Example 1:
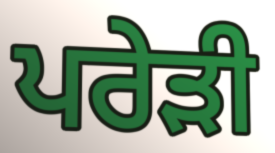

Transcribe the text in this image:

ਪਰੇੜੀ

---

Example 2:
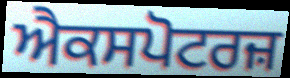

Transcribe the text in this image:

ਐਕਸਪੋਟਰਜ਼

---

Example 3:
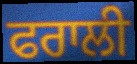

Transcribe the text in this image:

ਫਰਾਲੀ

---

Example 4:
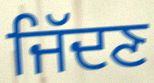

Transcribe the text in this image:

ਜਿੱਦਣ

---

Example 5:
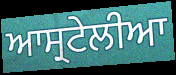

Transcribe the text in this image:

ਆਸ੍ਰਟੇਲੀਆ